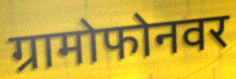
ग्रामोफोनवर